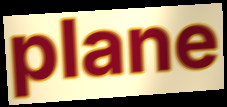
plane